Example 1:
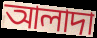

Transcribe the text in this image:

আলাদা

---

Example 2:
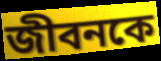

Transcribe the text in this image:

জীবনকে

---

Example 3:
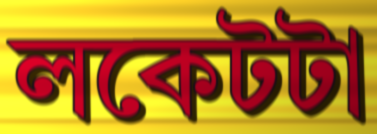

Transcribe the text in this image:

লকেটটা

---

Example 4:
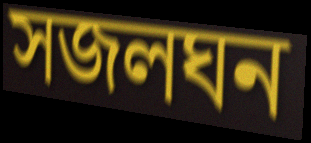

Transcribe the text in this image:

সজলঘন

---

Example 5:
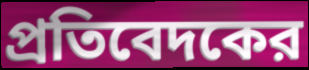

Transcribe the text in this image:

প্রতিবেদকের